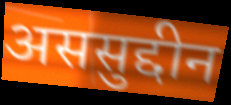
अससुद्दीन